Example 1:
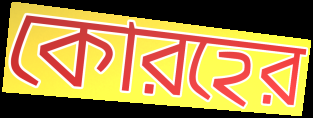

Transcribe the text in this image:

কোরহের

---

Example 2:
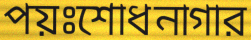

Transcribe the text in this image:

পয়ঃশোধনাগার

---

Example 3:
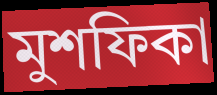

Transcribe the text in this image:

মুশফিকা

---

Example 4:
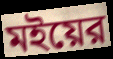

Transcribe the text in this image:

মইয়ের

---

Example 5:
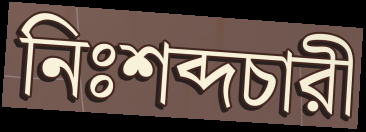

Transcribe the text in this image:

নিঃশব্দচারী